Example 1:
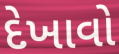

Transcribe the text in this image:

દેખાવો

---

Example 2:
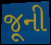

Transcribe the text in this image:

જૂની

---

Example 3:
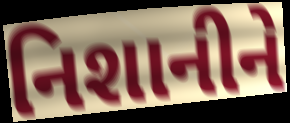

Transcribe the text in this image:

નિશાનીને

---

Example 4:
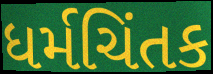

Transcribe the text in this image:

ધર્મચિંતક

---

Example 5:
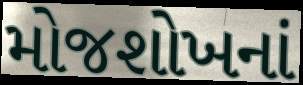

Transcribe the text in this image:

મોજશોખનાં